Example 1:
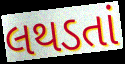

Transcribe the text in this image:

લથડતાં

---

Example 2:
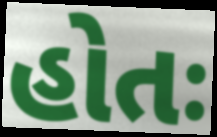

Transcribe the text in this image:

હોતઃ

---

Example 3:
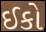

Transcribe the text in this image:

ઈકો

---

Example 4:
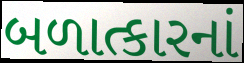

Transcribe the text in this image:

બળાત્કારનાં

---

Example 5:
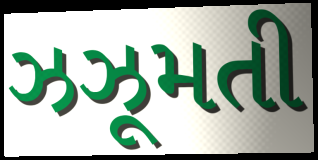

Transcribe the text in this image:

ઝઝૂમતી